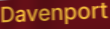
Davenport